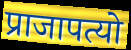
प्राजापत्यो